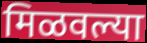
मिळवल्या